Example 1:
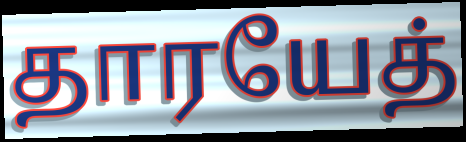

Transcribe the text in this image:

தாரயேத்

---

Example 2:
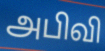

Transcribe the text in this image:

அபிவி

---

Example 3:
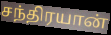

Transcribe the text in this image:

சந்திரயான்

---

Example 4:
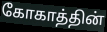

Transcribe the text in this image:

கோகாத்தின்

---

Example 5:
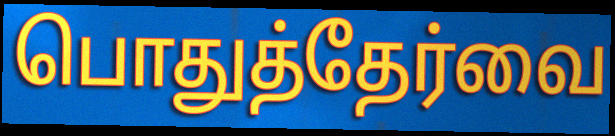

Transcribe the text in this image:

பொதுத்தேர்வை